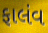
ફાલંવ